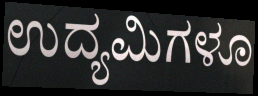
ಉದ್ಯಮಿಗಳೂ